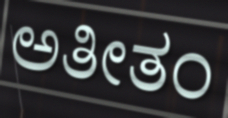
ಅತೀತಂ